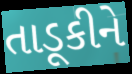
તાડૂકીને